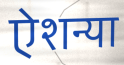
ऐशन्या